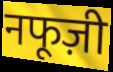
नफूज़ी